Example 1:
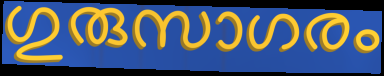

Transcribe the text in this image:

ഗുരുസാഗരം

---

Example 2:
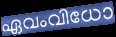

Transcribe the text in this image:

ഏവംവിധോ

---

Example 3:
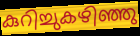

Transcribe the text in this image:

കുറിച്ചുകഴിഞ്ഞു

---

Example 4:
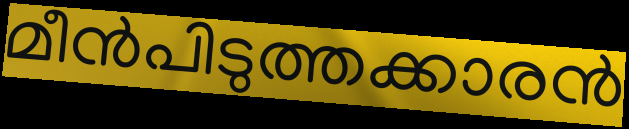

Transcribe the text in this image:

മീൻപിടുത്തക്കാരൻ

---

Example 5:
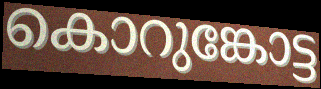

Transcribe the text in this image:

കൊറുങ്കോട്ട